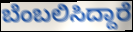
ಬೆಂಬಲಿಸಿದ್ದಾರೆ